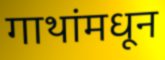
गाथांमधून